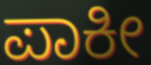
ಪಾಕೀ